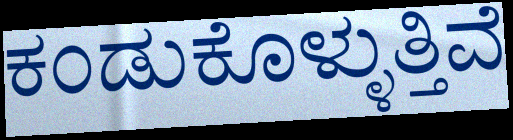
ಕಂಡುಕೊಳ್ಳುತ್ತಿವೆ